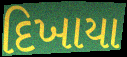
દિખાયા